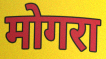
मोगरा